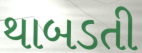
થાબડતી